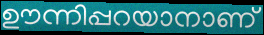
ഊന്നിപ്പറയാനാണ്